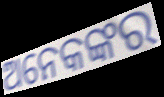
ଅନେକଙ୍କର